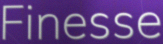
Finesse